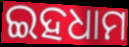
ଇହଧାମ